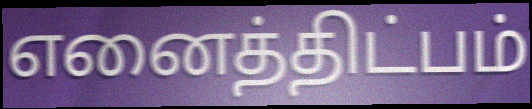
எனைத்திட்பம்